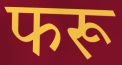
फरू